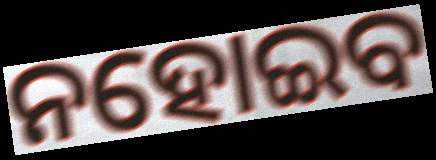
ନହୋଇବ